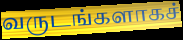
வருடங்களாகச்